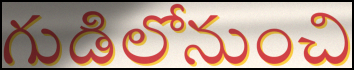
గుడిలోనుంచి